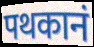
पथकानं